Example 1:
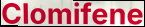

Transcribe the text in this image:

Clomifene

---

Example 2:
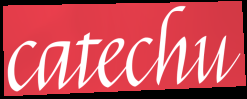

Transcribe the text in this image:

catechu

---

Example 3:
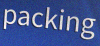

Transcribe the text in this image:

packing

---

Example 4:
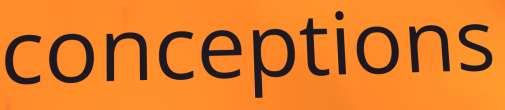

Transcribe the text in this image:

conceptions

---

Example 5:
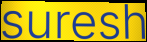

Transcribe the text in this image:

suresh